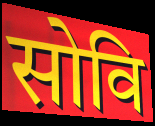
सोवि